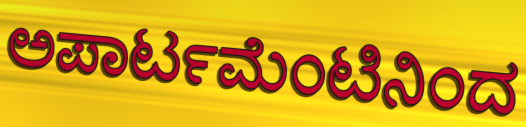
ಅಪಾರ್ಟಮೆಂಟಿನಿಂದ